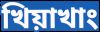
খিয়াখাং